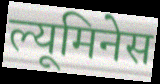
ल्यूमिनेस